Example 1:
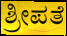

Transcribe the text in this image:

ಶ್ರೀಪತೆ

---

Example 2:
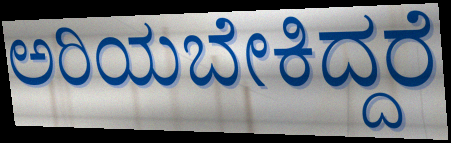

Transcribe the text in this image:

ಅರಿಯಬೇಕಿದ್ದರೆ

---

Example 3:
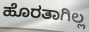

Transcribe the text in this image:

ಹೊರತಾಗಿಲ್ಲ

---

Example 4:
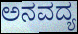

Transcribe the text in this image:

ಅನವದ್ಯ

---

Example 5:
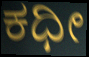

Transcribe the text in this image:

ಕಧೀ